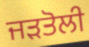
ਜੜਤੋਲੀ